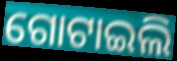
ଗୋଟାଇଲି